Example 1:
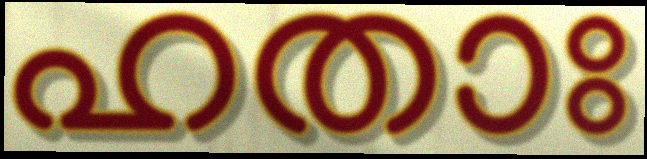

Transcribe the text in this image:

ഹതാഃ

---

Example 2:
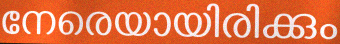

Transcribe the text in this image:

നേരെയായിരിക്കും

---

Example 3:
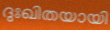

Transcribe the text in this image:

ദുഃഖിതയായി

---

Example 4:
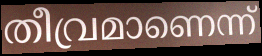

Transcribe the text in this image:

തീവ്രമാണെന്ന്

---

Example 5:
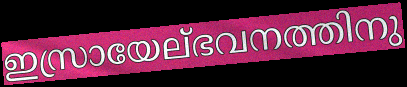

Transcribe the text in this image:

ഇസ്രായേല്ഭവനത്തിനു